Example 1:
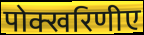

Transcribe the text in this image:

पोक्खरिणीए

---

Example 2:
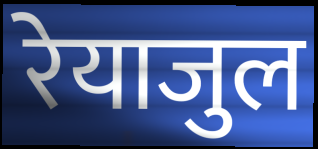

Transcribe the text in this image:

रेयाजुल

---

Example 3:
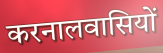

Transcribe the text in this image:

करनालवासियों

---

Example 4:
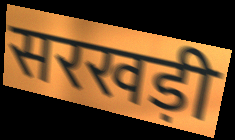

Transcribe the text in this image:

सरखड़ी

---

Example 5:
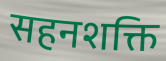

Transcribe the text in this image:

सहनशक्ति